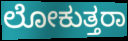
ಲೋಕುತ್ತರಾ